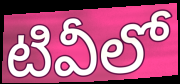
టివీలో